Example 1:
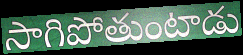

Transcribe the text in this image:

సాగిపోతుంటాడు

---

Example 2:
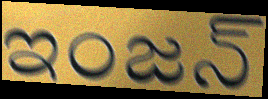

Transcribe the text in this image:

ఇంజన్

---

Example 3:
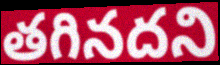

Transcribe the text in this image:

తగినదని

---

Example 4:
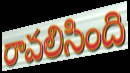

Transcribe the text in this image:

రావలిసింది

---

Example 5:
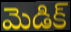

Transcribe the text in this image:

మెడిక్